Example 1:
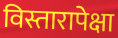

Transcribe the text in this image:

विस्तारापेक्षा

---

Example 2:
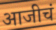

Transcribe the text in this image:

आजीचं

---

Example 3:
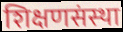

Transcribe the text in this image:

शिक्षणसंस्था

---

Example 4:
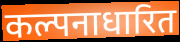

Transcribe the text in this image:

कल्पनाधारित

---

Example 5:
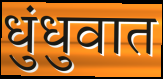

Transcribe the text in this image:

धुंधुवात